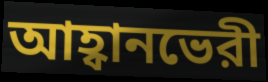
আহ্বানভেরী